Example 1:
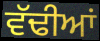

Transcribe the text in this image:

ਵੱਢੀਆਂ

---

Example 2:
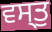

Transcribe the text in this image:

ਵਸ੍ਤੁ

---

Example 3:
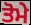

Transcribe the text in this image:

ਤੋਮੇ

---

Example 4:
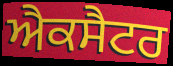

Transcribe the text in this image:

ਐਕਸੈਟਰ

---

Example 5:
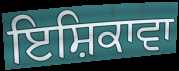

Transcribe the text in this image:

ਇਸ਼ਿਕਾਵਾ